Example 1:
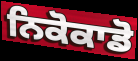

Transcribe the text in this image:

ਨਿਕੋਕਾਡੋ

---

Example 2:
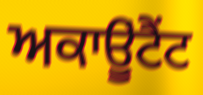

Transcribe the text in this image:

ਅਕਾਉੂਂਟੈਂਟ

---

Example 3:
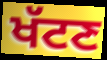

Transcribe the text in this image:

ਖੱਟਣ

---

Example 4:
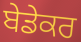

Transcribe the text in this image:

ਬੇਡੇਕਰ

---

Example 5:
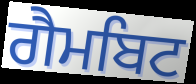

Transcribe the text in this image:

ਗੈਮਬਿਟ